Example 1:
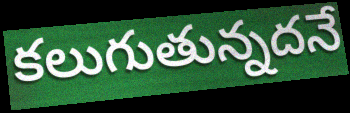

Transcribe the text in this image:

కలుగుతున్నదనే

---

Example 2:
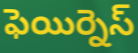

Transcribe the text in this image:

ఫెయిర్నెస్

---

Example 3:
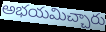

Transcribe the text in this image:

అభయమిచ్చారు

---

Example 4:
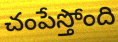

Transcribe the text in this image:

చంపేస్తోంది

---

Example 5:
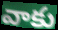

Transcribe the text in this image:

వాకు